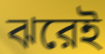
ঝরেই